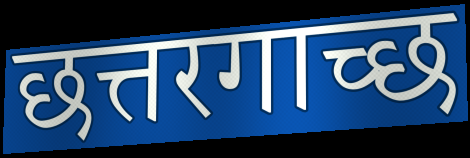
छत्तरगाच्छ